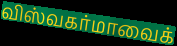
விஸ்வகர்மாவைக்